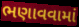
ભણાવવામાં